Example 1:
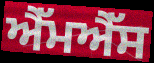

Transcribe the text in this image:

ਐੱਮਐੱਸ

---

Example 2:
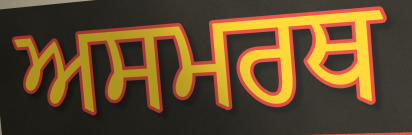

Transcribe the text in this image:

ਅਸਮਰਥ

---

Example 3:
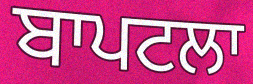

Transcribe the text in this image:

ਬਾਪਟਲਾ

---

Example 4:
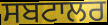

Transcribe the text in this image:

ਸਬਟਾਲਰ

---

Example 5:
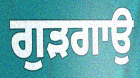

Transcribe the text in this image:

ਗੁੜਗਾਉ